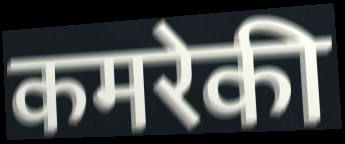
कमरेकी